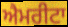
ਐਮਰੀਟਾ